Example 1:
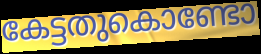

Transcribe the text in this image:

കേട്ടതുകൊണ്ടോ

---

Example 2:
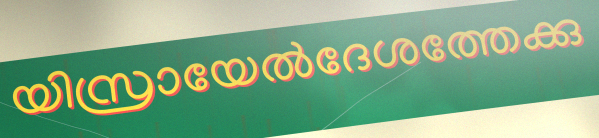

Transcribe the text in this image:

യിസ്രായേൽദേശത്തേക്കു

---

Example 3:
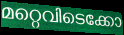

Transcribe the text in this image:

മറ്റെവിടെക്കോ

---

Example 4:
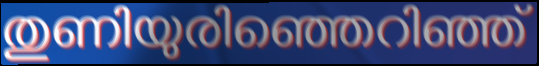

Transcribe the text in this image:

തുണിയുരിഞ്ഞെറിഞ്ഞ്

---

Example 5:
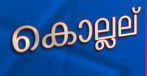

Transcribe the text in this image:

കൊല്ലല്